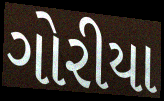
ગોરીયા